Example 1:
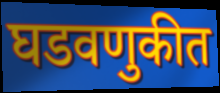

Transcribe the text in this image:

घडवणुकीत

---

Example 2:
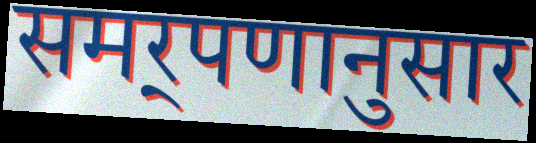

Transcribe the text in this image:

समर्पणानुसार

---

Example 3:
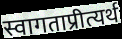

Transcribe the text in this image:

स्वागताप्रीत्यर्थ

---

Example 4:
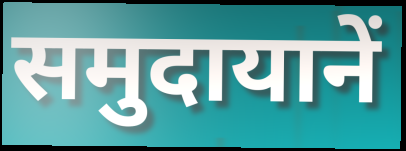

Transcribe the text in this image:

समुदायानें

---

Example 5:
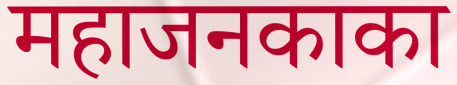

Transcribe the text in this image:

महाजनकाका